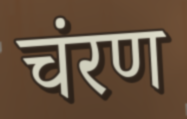
चंरण